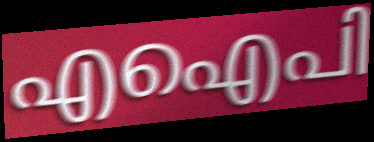
എഐപി